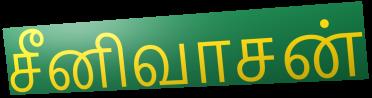
சீனிவாசன்